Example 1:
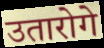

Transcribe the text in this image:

उतारोगे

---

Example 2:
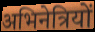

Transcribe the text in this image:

अभिनेत्रियों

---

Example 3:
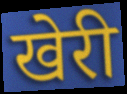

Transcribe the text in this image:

खेरी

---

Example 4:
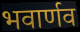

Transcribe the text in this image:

भवार्णव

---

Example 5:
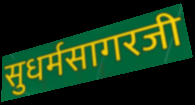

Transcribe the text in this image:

सुधर्मसागरजी